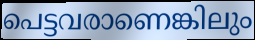
പെട്ടവരാണെങ്കിലും